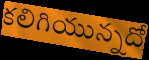
కలిగియున్నదో